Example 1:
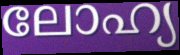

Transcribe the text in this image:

ലോഹ്യ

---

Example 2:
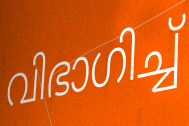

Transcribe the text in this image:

വിഭാഗിച്ച്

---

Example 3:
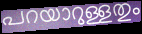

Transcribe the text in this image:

പറയാറുള്ളതും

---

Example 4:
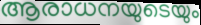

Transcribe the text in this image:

ആരാധനയുടെയും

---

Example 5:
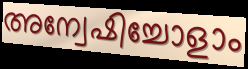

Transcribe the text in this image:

അന്വേഷിച്ചോളാം